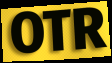
OTR